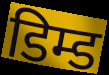
डिम्ड